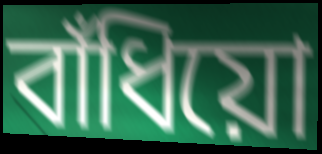
বাঁধিয়ো